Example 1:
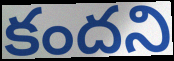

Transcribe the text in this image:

కందని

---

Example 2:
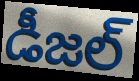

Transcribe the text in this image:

డీజల్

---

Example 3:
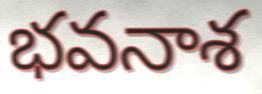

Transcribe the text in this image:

భవనాశ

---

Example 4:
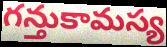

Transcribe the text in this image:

గన్తుకామస్య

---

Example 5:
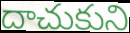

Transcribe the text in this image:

దాచుకుని